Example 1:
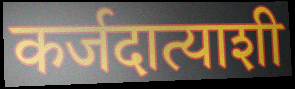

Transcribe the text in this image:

कर्जदात्याशी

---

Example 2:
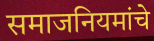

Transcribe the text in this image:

समाजनियमांचे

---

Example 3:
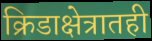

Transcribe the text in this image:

क्रिडाक्षेत्रातही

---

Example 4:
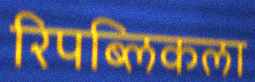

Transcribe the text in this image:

रिपब्लिकला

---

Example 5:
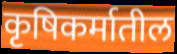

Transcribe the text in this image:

कृषिकर्मातील